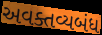
અવક્તવ્યબંધ